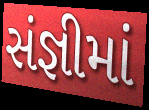
સંજ્ઞીમાં